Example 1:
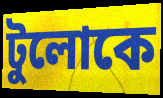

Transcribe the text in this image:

টুলোকে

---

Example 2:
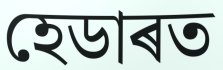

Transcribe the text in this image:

হেডাৰত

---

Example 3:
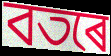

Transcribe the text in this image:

বতৰে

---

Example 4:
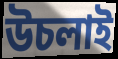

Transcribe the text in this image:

উচলাই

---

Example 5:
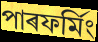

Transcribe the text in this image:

পাৰফৰ্মিং